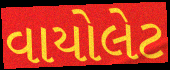
વાયોલેટ